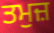
ਤਮੁਜ਼